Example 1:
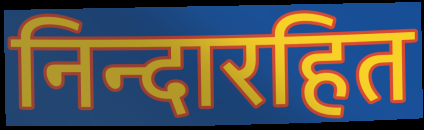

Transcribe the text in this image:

निन्दारहित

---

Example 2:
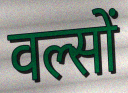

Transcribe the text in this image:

वल्सों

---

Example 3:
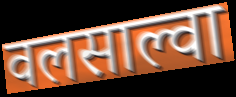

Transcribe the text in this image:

वलसाल्वा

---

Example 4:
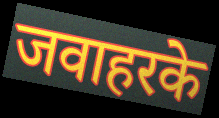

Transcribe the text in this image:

जवाहरके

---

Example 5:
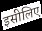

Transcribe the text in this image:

इसीलिए